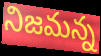
నిజమన్న